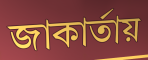
জাকার্তায়